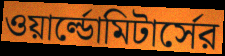
ওয়ার্ল্ডোমিটার্সের